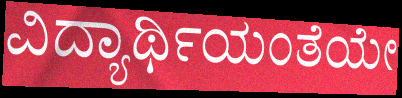
ವಿದ್ಯಾರ್ಥಿಯಂತೆಯೇ